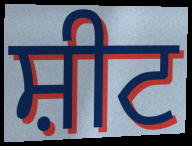
ਸ਼ੀਟ